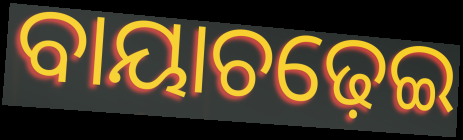
ବାୟାଚଢ଼େଇ